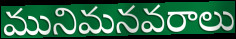
మునిమనవరాలు